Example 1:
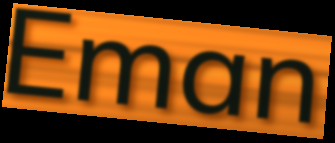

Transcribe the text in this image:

Eman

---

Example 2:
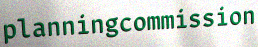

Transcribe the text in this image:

planningcommission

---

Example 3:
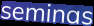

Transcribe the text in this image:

seminas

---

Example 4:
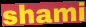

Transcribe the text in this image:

shami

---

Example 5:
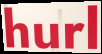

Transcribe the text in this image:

hurl